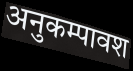
अनुकम्पावश